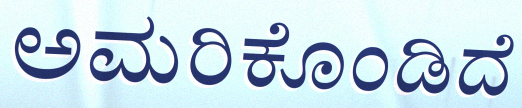
ಅಮರಿಕೊಂಡಿದೆ